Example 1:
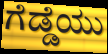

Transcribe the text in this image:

ಗೆಡ್ಡೆಯು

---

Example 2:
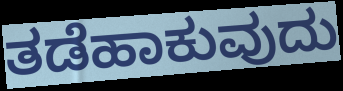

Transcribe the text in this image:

ತಡೆಹಾಕುವುದು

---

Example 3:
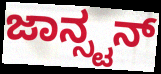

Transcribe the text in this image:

ಜಾನ್ಸ್ಟನ್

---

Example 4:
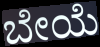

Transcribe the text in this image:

ಬೇಯೆ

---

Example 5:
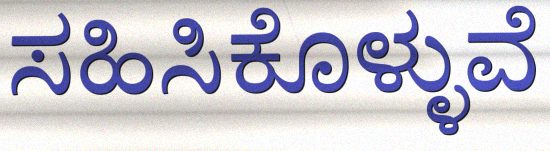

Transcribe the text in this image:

ಸಹಿಸಿಕೊಳ್ಳುವೆ